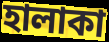
হালাকা